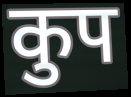
कुप